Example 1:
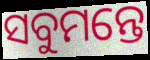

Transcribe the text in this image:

ସବୁମନ୍ତେ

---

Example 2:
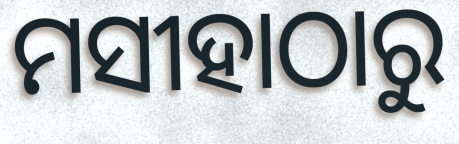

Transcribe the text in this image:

ମସୀହାଠାରୁ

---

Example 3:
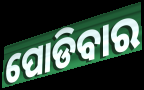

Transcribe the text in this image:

ପୋଡିବାର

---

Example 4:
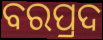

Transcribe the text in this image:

ବରପ୍ରଦ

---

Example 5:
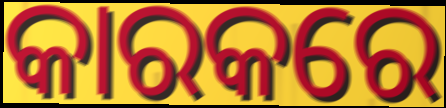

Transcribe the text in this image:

କାରକରେ